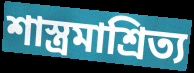
শাস্ত্রমাশ্রিত্য